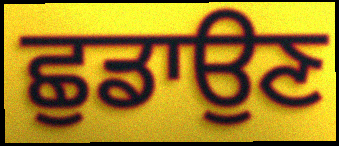
ਛੁਡਾਉਣ